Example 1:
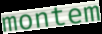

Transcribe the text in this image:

montem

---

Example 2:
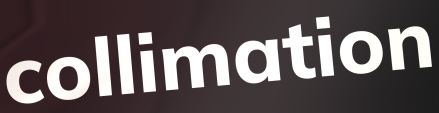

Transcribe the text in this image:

collimation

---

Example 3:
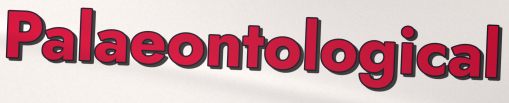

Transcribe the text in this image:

Palaeontological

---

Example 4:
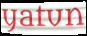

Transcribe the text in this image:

yatun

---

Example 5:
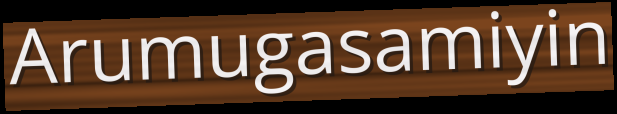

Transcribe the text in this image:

Arumugasamiyin